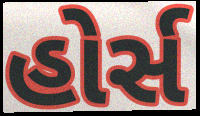
હોર્સ